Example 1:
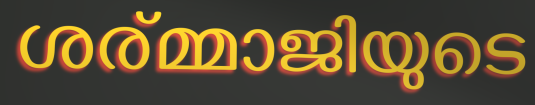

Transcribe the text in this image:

ശര്മ്മാജിയുടെ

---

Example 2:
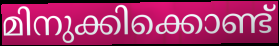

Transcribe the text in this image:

മിനുക്കിക്കൊണ്ട്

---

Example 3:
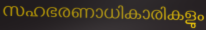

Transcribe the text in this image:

സഹഭരണാധികാരികളും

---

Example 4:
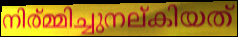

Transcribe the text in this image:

നിര്മ്മിച്ചുനല്കിയത്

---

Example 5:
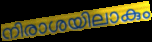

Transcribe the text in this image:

നിരാശയിലാകും